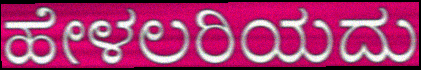
ಹೇಳಲರಿಯದು